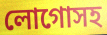
লোগোসহ